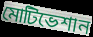
মোটিভেশান